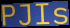
PJIs